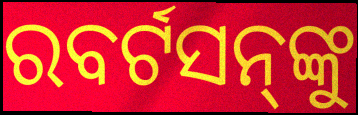
ରବର୍ଟସନ୍‌ଙ୍କୁ